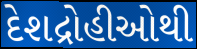
દેશદ્રોહીઓથી